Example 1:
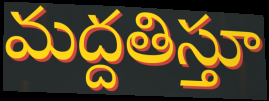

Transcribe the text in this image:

మద్దతిస్తూ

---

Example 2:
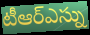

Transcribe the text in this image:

టీఆర్ఎస్ను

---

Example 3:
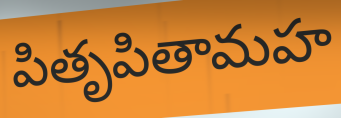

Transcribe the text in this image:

పితృపితామహ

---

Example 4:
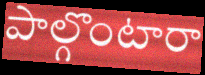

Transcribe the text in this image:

పాల్గొంటారా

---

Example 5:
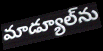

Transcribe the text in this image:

మాడ్యూల్‌ను